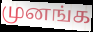
முனங்க